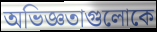
অভিজ্ঞতাগুলোকে